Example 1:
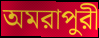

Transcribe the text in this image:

অমরাপুরী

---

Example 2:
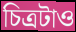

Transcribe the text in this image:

চিত্রটাও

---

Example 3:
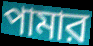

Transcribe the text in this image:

পামার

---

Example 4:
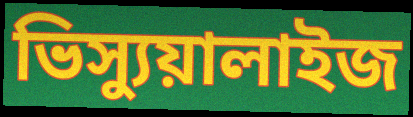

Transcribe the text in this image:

ভিস্যুয়ালাইজ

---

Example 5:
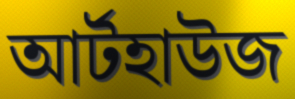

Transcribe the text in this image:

আর্টহাউজ